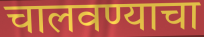
चालवण्याचा